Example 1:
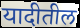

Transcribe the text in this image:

यादीतील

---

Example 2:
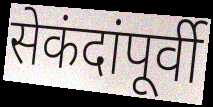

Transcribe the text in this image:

सेकंदांपूर्वी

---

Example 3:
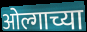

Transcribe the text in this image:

ओल्गाच्या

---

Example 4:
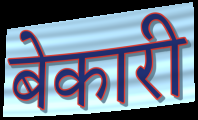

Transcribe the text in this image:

बेकारी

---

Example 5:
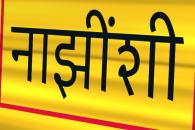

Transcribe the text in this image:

नाझींशी